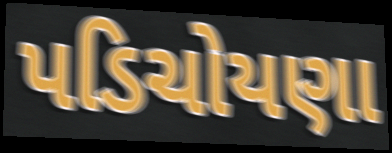
પડિચોયણા